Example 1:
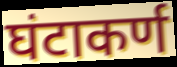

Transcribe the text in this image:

घंटाकर्ण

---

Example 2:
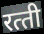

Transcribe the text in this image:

रत्‍ती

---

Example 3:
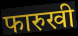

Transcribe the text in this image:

फारुखी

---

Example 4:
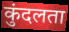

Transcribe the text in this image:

कुंदलता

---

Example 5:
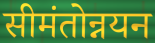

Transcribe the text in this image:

सीमंतोन्नयन